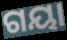
ଗୟା